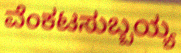
ವೆಂಕಟಸುಬ್ಬಯ್ಯ